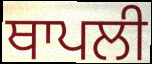
ਥਾਪਲੀ